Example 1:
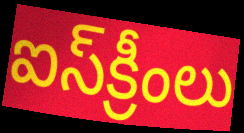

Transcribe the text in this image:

ఐస్‌క్రీంలు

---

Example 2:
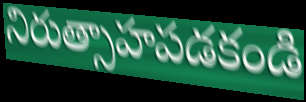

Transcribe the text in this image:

నిరుత్సాహపడకండి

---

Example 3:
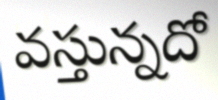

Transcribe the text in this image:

వస్తున్నదో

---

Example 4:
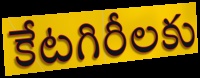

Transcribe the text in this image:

కేటగిరీలకు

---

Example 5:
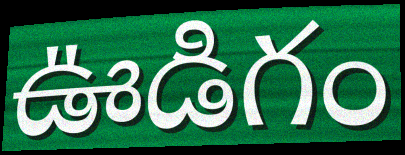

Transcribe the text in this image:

ఊడిగం